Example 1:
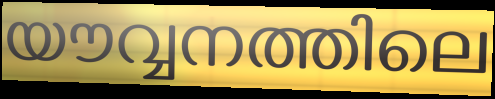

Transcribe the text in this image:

യൗവ്വനത്തിലെ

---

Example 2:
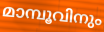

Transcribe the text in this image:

മാമ്പൂവിനും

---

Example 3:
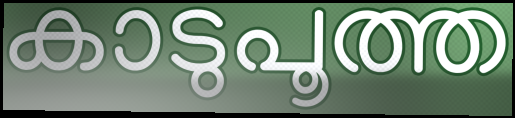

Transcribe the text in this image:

കാടുപൂത്ത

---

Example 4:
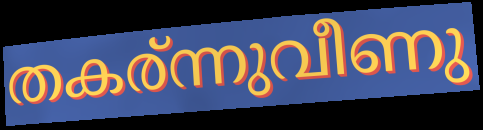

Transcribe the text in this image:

തകര്ന്നുവീണു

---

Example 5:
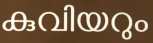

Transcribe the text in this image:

കുവിയറും